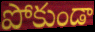
పోకుండా